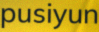
pusiyun